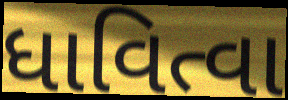
ધાવિત્વા